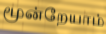
மூன்றேயாம்